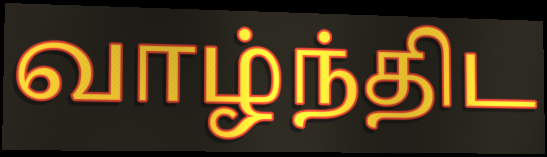
வாழ்ந்திட